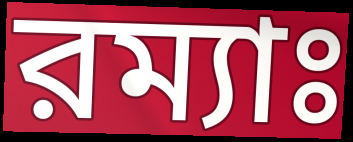
রম্যাঃ